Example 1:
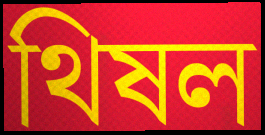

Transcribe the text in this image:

থিষল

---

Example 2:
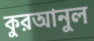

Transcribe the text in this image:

কুরআনুল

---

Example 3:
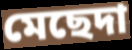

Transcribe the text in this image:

মেছেদা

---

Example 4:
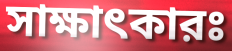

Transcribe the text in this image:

সাক্ষাৎকারঃ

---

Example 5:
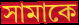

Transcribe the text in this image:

সামাকে